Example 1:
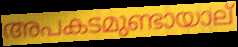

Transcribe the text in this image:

അപകടമുണ്ടായാല്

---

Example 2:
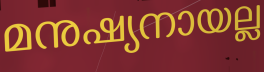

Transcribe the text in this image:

മനുഷ്യനായല്ല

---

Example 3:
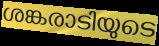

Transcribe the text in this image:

ശങ്കരാടിയുടെ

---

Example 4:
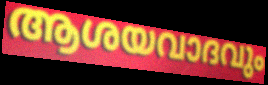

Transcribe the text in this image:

ആശയവാദവും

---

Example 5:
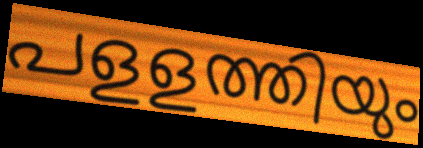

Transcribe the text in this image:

പളളത്തിയും